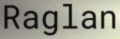
Raglan